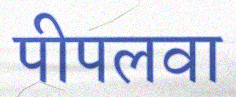
पीपलवा